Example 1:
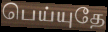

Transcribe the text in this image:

பெய்யுதே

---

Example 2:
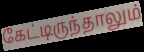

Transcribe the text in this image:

கேட்டிருந்தாலும்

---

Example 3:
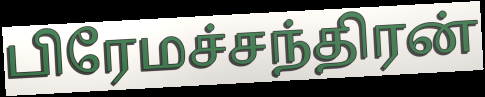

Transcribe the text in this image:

பிரேமச்சந்திரன்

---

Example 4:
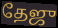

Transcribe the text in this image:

தேஜு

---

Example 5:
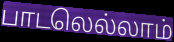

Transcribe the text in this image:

பாடலெல்லாம்